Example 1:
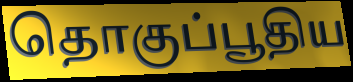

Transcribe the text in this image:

தொகுப்பூதிய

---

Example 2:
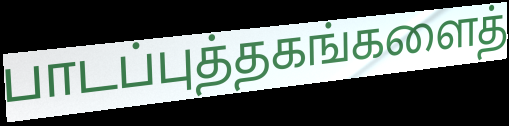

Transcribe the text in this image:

பாடப்புத்தகங்களைத்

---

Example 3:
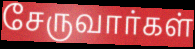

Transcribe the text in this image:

சேருவார்கள்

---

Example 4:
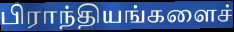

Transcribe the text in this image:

பிராந்தியங்களைச்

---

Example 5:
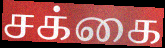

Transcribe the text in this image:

சக்கை